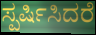
ಸ್ಪರ್ಷಿಸಿದರೆ